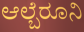
ಆಲ್ಬೆರೂನಿ